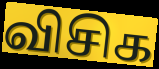
விசிக